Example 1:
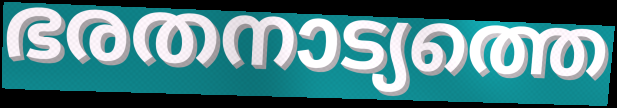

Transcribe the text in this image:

ഭരതനാട്യത്തെ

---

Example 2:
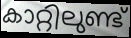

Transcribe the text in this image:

കാറ്റിലുണ്ട്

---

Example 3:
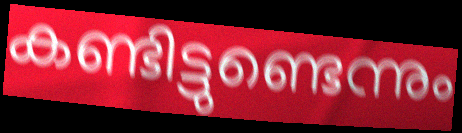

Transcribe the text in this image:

കണ്ടിട്ടുണ്ടെന്നും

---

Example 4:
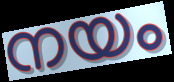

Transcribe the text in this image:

നയം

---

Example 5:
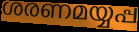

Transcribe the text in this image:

ശരണമയ്യപ്പ